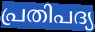
പ്രതിപദ്യ